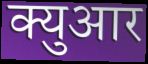
क्युआर